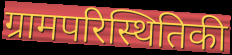
ग्रामपरिस्थितिकी